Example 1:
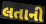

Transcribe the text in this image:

લતાની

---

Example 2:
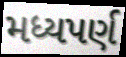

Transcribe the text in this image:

મધ્યપર્ણ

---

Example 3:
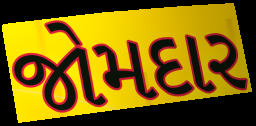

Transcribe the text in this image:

જોમદાર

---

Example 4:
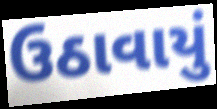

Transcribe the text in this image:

ઉઠાવાયું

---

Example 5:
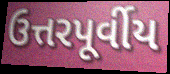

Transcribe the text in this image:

ઉત્તરપૂર્વીય